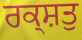
ਰਕ੍ਸ਼ਤੁ